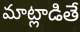
మాట్లాడితే